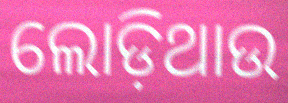
ଲୋଡ଼ିଥାଉ